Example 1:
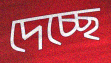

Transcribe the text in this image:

দেচ্ছে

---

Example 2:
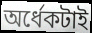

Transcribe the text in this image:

অর্ধেকটাই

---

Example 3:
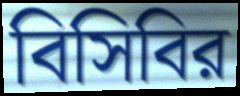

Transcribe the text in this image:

বিসিবির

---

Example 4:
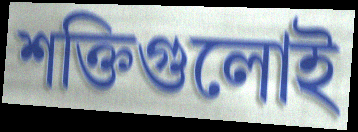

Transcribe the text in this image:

শক্তিগুলোই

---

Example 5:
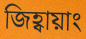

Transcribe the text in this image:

জিহ্বায়াং